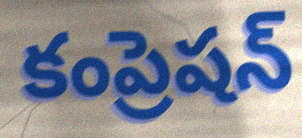
కంప్రెషన్